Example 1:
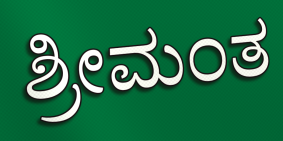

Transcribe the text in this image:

ಶ್ರೀಮಂತ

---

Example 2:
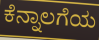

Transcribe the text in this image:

ಕೆನ್ನಾಲಗೆಯ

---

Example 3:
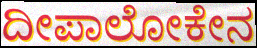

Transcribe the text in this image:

ದೀಪಾಲೋಕೇನ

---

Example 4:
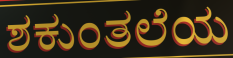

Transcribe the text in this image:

ಶಕುಂತಲೆಯ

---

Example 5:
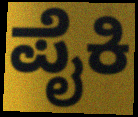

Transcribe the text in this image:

ಪೈಕಿ